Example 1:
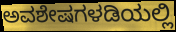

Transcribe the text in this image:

ಅವಶೇಷಗಳಡಿಯಲ್ಲಿ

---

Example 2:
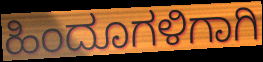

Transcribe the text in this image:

ಹಿಂದೂಗಳಿಗಾಗಿ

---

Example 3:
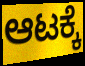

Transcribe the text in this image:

ಆಟಕ್ಕೆ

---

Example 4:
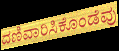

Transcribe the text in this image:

ದಣಿವಾರಿಸಿಕೊಂಡೆವು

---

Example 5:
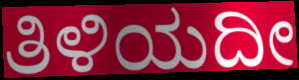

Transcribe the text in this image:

ತಿಳಿಯದೀ